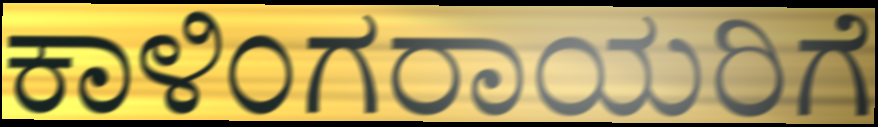
ಕಾಳಿಂಗರಾಯರಿಗೆ